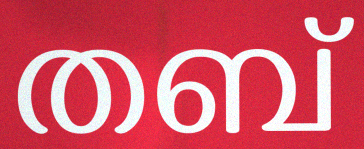
തബ്